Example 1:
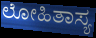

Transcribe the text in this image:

ಲೋಹಿತಾಸ್ಯ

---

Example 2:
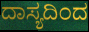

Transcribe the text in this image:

ದಾಸ್ಯದಿಂದ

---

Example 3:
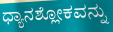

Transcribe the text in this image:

ಧ್ಯಾನಶ್ಲೋಕವನ್ನು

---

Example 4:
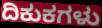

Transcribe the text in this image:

ದಿಕುಕಗಳು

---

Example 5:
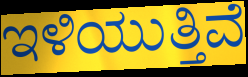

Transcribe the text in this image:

ಇಳಿಯುತ್ತಿವೆ